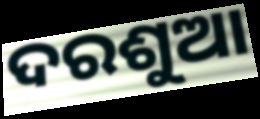
ଦରଶୁଆ